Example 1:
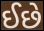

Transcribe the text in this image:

ઈછે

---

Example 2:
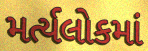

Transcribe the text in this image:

મર્ત્યલોકમાં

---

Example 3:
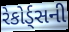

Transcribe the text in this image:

રેકોર્ડ્સની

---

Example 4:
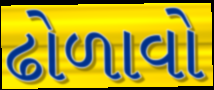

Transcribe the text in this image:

ઢોળાવો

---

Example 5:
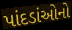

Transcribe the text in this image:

પાંદડાંઓનો